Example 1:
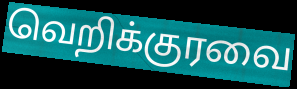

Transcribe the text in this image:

வெறிக்குரவை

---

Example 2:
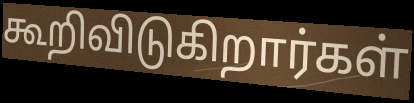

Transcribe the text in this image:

கூறிவிடுகிறார்கள்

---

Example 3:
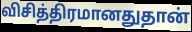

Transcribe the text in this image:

விசித்திரமானதுதான்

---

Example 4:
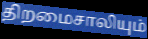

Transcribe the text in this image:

திறமைசாலியும்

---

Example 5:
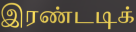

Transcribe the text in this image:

இரண்டடிக்